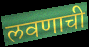
लवणाची